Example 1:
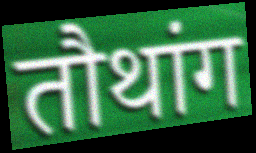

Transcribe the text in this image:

तौथांग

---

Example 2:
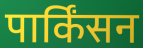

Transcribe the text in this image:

पार्किंसन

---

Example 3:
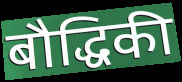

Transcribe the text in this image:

बौद्धिकी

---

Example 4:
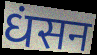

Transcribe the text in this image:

धंसन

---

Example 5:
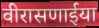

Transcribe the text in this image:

वीरासणाईया